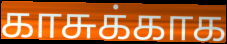
காசுக்காக